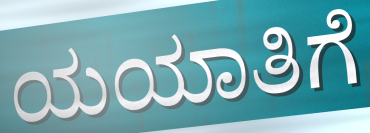
ಯಯಾತಿಗೆ